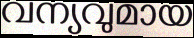
വന്യവുമായ